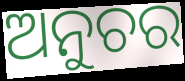
ଅନୁଚର